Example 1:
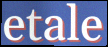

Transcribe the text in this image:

etale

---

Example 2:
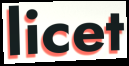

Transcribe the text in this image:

licet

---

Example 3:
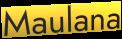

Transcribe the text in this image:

Maulana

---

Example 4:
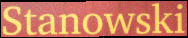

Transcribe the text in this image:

Stanowski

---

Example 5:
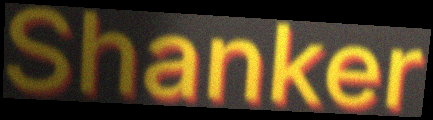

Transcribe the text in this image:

Shanker